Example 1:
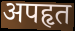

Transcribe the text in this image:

अपहृत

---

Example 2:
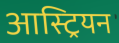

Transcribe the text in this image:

आस्ट्रियन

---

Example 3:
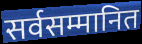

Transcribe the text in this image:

सर्वसम्मानित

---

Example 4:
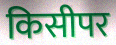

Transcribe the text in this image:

किसीपर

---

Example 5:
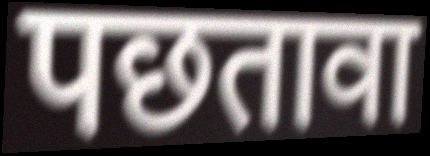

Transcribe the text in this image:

पछतावा